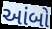
આંબો